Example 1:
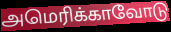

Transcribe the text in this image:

அமெரிக்காவோடு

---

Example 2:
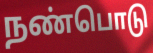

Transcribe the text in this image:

நண்பொடு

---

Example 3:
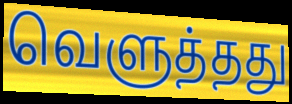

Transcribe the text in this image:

வெளுத்தது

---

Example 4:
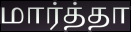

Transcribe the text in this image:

மார்த்தா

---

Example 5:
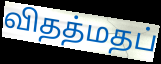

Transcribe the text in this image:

விதத்மதப்